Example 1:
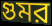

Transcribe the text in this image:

গুমর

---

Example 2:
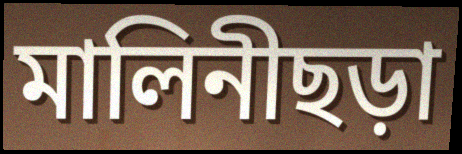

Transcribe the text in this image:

মালিনীছড়া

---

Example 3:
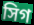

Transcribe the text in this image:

সিগ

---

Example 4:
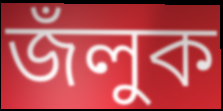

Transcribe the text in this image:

জঁলুক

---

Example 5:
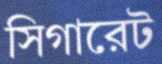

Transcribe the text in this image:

সিগারেট